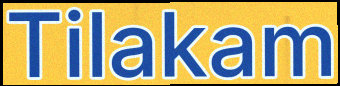
Tilakam